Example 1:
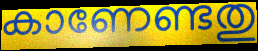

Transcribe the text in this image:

കാണേണ്ടതു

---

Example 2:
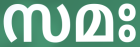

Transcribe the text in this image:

സമഃ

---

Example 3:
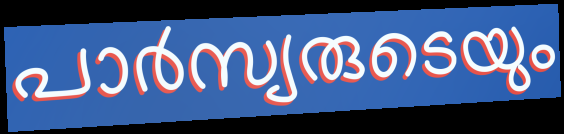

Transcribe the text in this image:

പാർസ്യരുടെയും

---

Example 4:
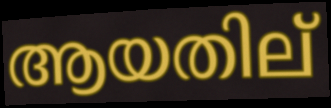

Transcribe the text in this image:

ആയതില്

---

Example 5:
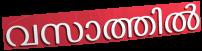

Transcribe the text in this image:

വസാത്തിൽ